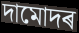
দামোদৰ